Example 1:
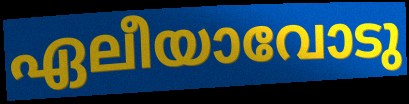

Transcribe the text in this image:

ഏലീയാവോടു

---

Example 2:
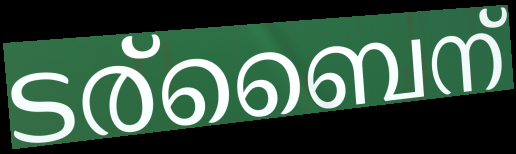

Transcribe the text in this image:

ടര്ബൈന്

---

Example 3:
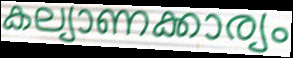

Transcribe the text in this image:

കല്യാണക്കാര്യം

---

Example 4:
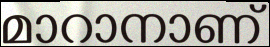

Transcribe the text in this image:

മാറാനാണ്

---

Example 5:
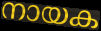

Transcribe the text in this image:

നായക